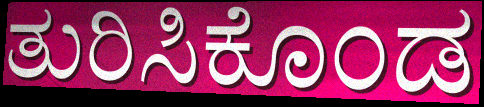
ತುರಿಸಿಕೊಂಡ